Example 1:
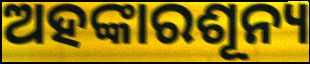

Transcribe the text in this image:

ଅହଙ୍କାରଶୂନ୍ୟ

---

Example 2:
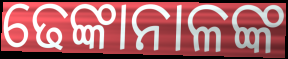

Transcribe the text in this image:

ଢେଙ୍କାନାଳଙ୍କ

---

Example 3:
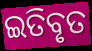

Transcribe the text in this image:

ଇତିବୃତ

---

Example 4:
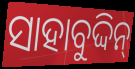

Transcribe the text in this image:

ସାହାବୁଦ୍ଦିନ୍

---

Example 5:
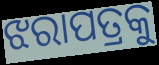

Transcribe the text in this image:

ଝରାପତ୍ରକୁ